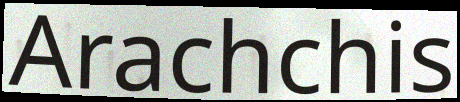
Arachchis